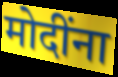
मोदींना